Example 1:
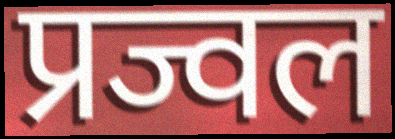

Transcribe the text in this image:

प्रज्वल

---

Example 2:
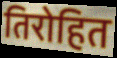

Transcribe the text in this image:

तिरोहित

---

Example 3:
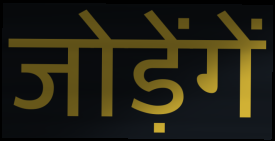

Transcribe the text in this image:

जोड़ेंगें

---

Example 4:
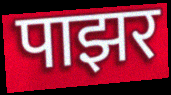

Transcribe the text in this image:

पाझर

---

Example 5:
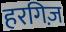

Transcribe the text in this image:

हरगिज़